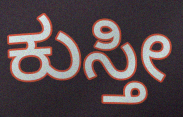
ಕುಸ್ತೀ